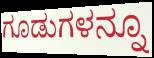
ಗೂಡುಗಳನ್ನೂ